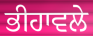
ਭੀਹਾਵਲੇ